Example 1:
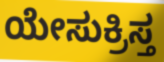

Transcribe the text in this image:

ಯೇಸುಕ್ರಿಸ್ತ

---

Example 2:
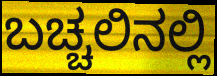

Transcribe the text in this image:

ಬಚ್ಚಲಿನಲ್ಲಿ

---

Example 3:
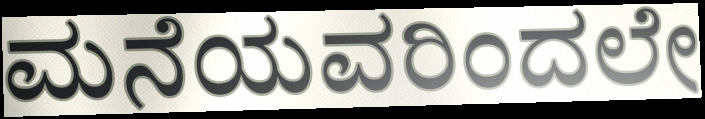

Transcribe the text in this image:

ಮನೆಯವರಿಂದಲೇ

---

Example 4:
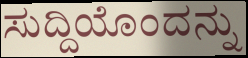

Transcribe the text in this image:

ಸುದ್ದಿಯೊಂದನ್ನು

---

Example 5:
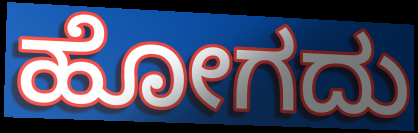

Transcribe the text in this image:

ಹೋಗದು